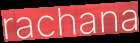
rachana